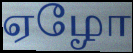
ஏழோ